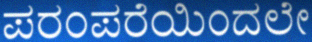
ಪರಂಪರೆಯಿಂದಲೇ